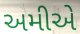
અમીએ